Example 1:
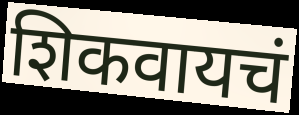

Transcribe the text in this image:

शिकवायचं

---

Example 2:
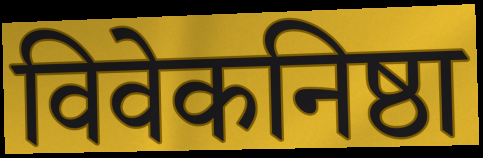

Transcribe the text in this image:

विवेकनिष्ठा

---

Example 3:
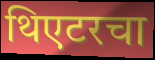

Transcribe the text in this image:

थिएटरचा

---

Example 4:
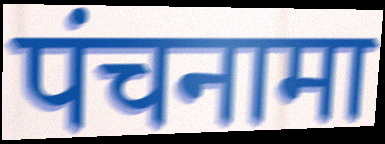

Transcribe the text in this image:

पंचनामा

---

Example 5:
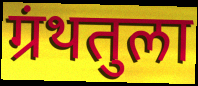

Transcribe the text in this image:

ग्रंथतुला